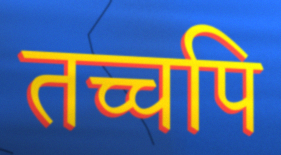
तच्चपि